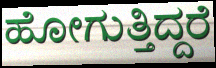
ಹೋಗುತ್ತಿದ್ದರೆ